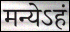
मन्येऽहं